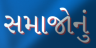
સમાજોનું